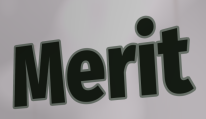
Merit